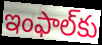
ఇంఫాల్‌కు